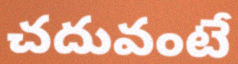
చదువంటే